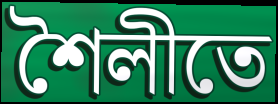
শৈলীতে